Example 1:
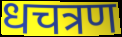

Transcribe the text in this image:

धचत्रण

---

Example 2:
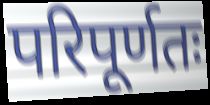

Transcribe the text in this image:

परिपूर्णतः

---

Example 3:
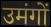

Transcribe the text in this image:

उमंगों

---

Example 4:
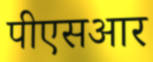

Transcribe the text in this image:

पीएसआर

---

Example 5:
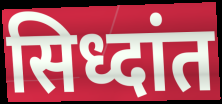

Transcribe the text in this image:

सिध्दांत